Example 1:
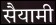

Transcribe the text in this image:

सैयामी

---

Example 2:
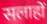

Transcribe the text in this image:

सलाहों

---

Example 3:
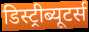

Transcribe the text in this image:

डिस्ट्रीब्यूटर्स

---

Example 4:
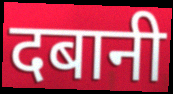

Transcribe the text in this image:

दबानी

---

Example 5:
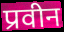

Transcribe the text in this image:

प्रवीन